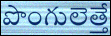
పొంగులెత్తే